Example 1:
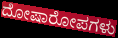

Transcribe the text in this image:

ದೋಷಾರೋಪಗಳು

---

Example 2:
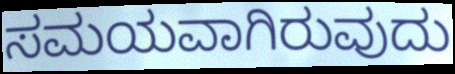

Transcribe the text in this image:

ಸಮಯವಾಗಿರುವುದು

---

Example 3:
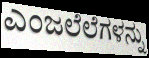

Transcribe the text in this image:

ಎಂಜಲೆಲೆಗಳನ್ನು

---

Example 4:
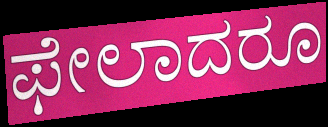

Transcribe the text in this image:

ಫೇಲಾದರೂ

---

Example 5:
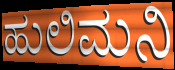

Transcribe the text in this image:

ಹುಲಿಮನಿ